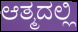
ಆತ್ಮದಲ್ಲಿ